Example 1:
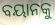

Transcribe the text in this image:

ବୟାନକୁ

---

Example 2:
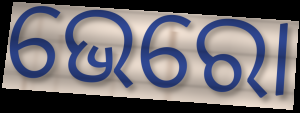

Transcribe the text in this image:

ଭେରୋ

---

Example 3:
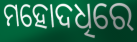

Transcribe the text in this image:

ମହୋଦଧିରେ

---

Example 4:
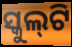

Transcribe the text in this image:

ସ୍କୁଲ୍‌ଟି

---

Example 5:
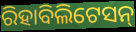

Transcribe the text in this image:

ରିହାବିଲିଟେସନ୍